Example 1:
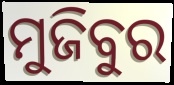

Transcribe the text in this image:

ମୁଜିବୁର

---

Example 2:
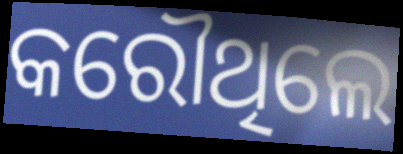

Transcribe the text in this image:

କରୌଥିଲେ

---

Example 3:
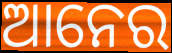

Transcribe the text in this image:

ଆନେର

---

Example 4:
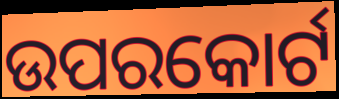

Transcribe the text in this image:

ଉପରକୋର୍ଟ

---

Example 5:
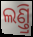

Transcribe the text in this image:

ଲଣ୍ତ୍ରି